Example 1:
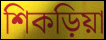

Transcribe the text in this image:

শিকড়িয়া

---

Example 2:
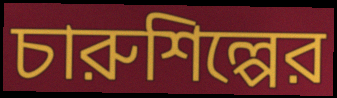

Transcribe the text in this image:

চারুশিল্পের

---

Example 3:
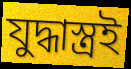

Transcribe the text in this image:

যুদ্ধাস্ত্রই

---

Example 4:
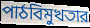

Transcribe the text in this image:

পাঠবিমুখতার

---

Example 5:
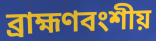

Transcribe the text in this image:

ব্রাহ্মণবংশীয়